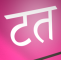
टत